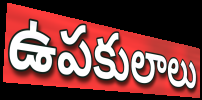
ఉపకులాలు